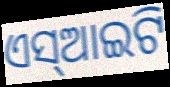
ଏସ୍ଆଇଟି